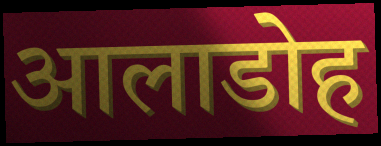
आलाडोह